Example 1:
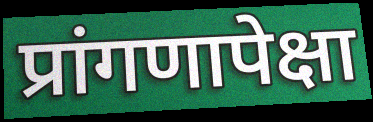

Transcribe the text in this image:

प्रांगणापेक्षा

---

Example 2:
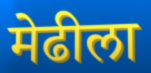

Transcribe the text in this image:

मेढीला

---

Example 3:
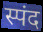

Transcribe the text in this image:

स्पंद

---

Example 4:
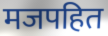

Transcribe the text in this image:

मजपहित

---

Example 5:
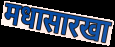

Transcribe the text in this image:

मधासारखा